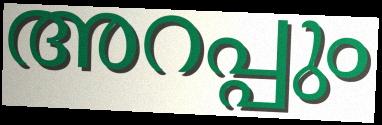
അറപ്പും